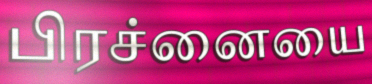
பிரச்னையை